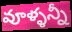
వూళ్ళన్నీ